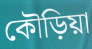
কৌড়িয়া